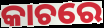
କାଚରେ